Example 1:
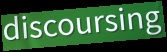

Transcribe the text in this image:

discoursing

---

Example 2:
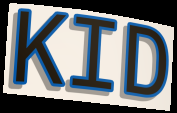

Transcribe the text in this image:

KID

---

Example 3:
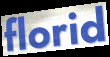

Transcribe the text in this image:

florid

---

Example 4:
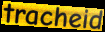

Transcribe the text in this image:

tracheid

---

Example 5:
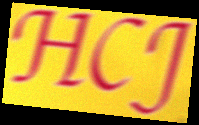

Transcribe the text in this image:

HCJ